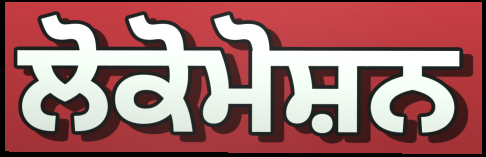
ਲੋਕੋਮੋਸ਼ਨ